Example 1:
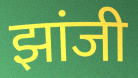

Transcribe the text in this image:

झांजी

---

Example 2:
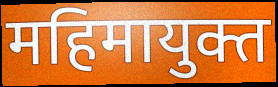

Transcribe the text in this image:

महिमायुक्‍त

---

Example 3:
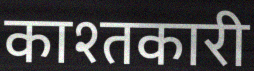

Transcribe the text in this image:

काश्तकारी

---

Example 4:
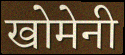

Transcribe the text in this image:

खोमेनी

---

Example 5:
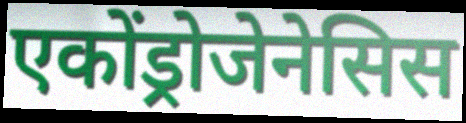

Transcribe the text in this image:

एकोंड्रोजेनेसिस